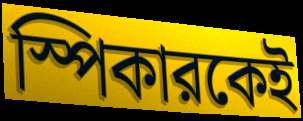
স্পিকারকেই